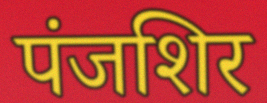
पंजशिर